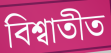
বিশ্বাতীত